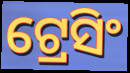
ଟ୍ରେସିଂ